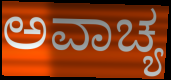
ಅವಾಚ್ಯ